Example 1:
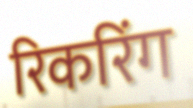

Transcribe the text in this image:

रिकरिंग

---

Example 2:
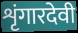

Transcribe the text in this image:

शृंगारदेवी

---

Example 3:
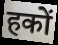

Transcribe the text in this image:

हकों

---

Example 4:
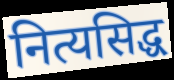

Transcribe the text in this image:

नित्यसिद्ध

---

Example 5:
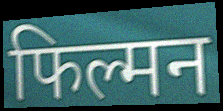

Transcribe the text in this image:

फिल्मन